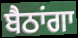
ਬੈਠਾਂਗਾ